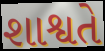
શાશ્વતે